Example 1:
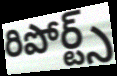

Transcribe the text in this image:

రిపోర్ట్స్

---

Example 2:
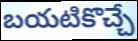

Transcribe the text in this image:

బయటికొచ్చే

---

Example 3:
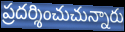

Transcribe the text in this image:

ప్రదర్శించుచున్నారు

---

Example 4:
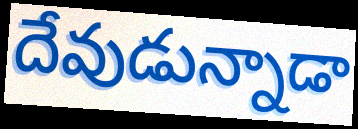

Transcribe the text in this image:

దేవుడున్నాడా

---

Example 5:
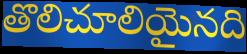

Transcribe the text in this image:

తొలిచూలియైనది